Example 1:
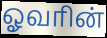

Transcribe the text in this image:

ஓவரின்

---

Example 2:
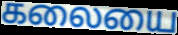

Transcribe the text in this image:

கலையை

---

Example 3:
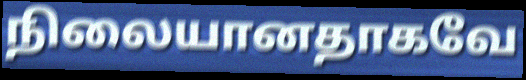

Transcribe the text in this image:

நிலையானதாகவே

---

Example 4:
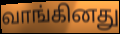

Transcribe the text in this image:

வாங்கினது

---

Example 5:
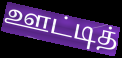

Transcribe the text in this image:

ஊட்டித்